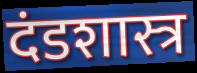
दंडशास्त्र